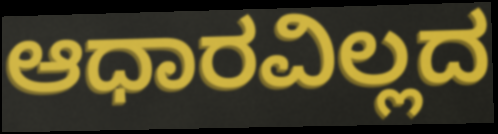
ಆಧಾರವಿಲ್ಲದ